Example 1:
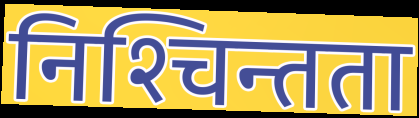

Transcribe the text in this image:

निश्चिन्तता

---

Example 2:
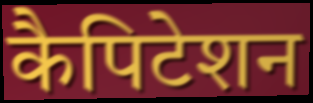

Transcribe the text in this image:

कैपिटेशन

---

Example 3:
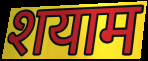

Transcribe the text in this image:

शयाम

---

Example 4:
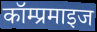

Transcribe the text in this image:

कॉम्प्रमाइज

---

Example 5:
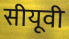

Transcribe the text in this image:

सीयूवी